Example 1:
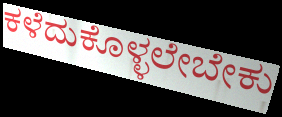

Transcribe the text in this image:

ಕಳೆದುಕೊಳ್ಳಲೇಬೇಕು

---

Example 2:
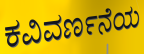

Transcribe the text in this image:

ಕವಿವರ್ಣನೆಯ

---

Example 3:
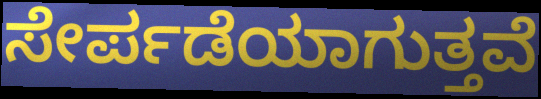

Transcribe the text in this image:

ಸೇರ್ಪಡೆಯಾಗುತ್ತವೆ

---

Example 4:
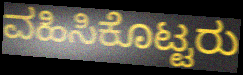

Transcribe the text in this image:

ವಹಿಸಿಕೊಟ್ಟರು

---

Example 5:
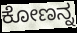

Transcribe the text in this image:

ಕೋಣನ್ನ